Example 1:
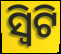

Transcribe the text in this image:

ସ୍ୱିଟି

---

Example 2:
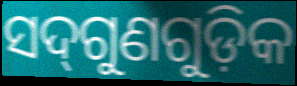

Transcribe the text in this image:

ସଦ୍‌ଗୁଣଗୁଡ଼ିକ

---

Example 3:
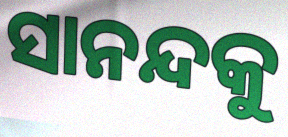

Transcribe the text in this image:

ସାନନ୍ଦକୁ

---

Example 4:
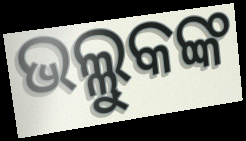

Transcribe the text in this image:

ଭଲ୍ଲୁକଙ୍କ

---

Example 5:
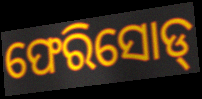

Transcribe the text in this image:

ଫେରିସୋଡ୍